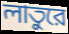
লাতুরে